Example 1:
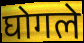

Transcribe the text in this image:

घोगले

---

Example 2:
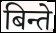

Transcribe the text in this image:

बिन्ते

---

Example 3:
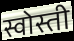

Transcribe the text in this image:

स्वोस्ती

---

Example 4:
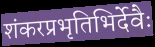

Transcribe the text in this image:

शंकरप्रभृतिभिर्देवैः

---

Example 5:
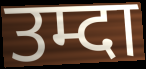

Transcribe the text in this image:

उम्‍दा